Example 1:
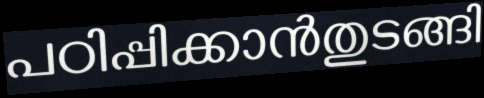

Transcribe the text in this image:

പഠിപ്പിക്കാൻതുടങ്ങി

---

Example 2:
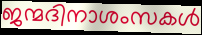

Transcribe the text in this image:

ജന്മദിനാശംസകൾ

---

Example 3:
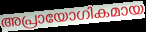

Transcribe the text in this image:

അപ്രായോഗികമായ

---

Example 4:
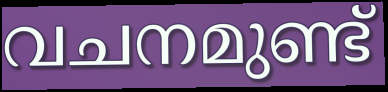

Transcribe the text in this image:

വചനമുണ്ട്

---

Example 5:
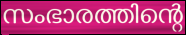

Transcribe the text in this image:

സംഭാരത്തിന്റെ